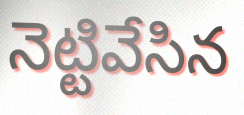
నెట్టివేసిన